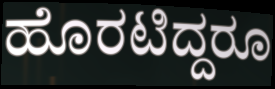
ಹೊರಟಿದ್ದರೂ